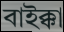
বাইক্কা